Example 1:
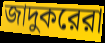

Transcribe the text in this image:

জাদুকরেরা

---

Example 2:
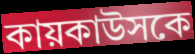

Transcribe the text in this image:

কায়কাউসকে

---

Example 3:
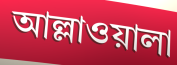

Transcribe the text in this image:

আল্লাওয়ালা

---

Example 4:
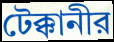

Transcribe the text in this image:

টেক্কানীর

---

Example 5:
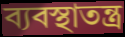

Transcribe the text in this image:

ব্যবস্থাতন্ত্র